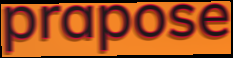
prapose